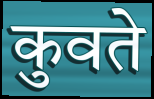
कुवते